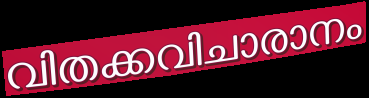
വിതക്കവിചാരാനം